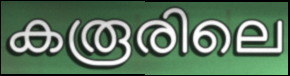
കരൂരിലെ